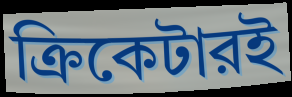
ক্রিকেটারই